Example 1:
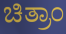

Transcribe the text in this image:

ಚಿತ್ರಾಂ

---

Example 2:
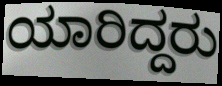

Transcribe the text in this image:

ಯಾರಿದ್ದರು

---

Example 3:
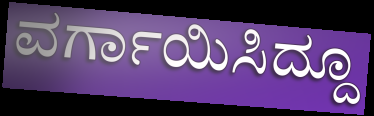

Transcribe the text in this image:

ವರ್ಗಾಯಿಸಿದ್ದೂ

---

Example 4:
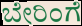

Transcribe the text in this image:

ಬೇರಿಂಗೆ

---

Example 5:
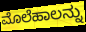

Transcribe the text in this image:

ಮೊಲೆಹಾಲನ್ನು